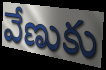
వేణుకు